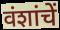
वंशांचें